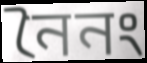
নৈনং